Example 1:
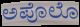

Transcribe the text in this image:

ಅಪೊಲೊ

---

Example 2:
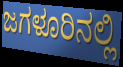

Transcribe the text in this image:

ಜಗಳೂರಿನಲ್ಲಿ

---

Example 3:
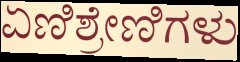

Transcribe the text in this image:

ಏಣಿಶ್ರೇಣಿಗಳು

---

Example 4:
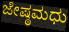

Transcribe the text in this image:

ಜೇಷ್ಠಮಧು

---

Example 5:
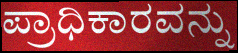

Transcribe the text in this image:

ಪ್ರಾಧಿಕಾರವನ್ನು